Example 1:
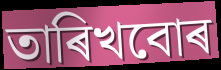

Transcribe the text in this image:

তাৰিখবোৰ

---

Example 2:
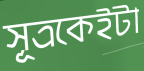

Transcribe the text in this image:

সূত্ৰকেইটা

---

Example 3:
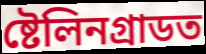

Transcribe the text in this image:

ষ্টেলিনগ্ৰাডত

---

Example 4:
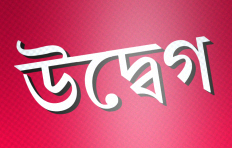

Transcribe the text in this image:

উদ্বেগ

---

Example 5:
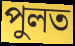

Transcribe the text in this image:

পুলত